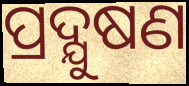
ପ୍ରଦ୍ଯୁଷଣ